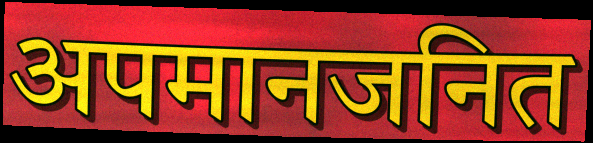
अपमानजनित